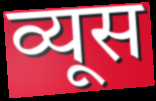
व्यूस